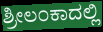
ಶ್ರೀಲಂಕಾದಲ್ಲಿ